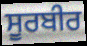
ਸੂਰਬੀਰ